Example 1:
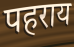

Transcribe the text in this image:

पहराय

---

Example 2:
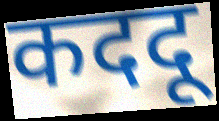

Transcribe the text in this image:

कददू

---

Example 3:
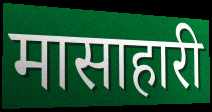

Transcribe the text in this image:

मासाहारी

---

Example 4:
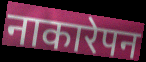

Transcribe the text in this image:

नाकारेपन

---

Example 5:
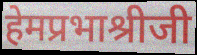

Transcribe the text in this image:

हेमप्रभाश्रीजी